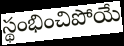
స్థంభించిపోయే